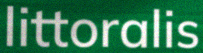
littoralis